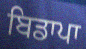
ਬਿਡਾਪਾ